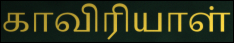
காவிரியாள்